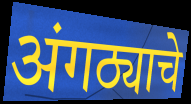
अंगठ्याचे